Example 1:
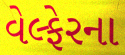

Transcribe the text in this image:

વેલ્ફેરના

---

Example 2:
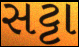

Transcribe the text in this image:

સટ્ટા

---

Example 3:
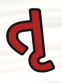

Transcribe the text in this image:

તૃ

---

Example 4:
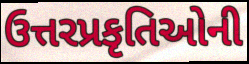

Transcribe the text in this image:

ઉત્તરપ્રકૃતિઓની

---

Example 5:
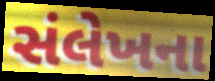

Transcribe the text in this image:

સંલેખના